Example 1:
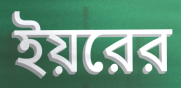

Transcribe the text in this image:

ইয়রের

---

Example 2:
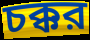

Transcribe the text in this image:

চক্কর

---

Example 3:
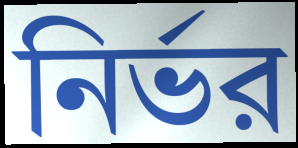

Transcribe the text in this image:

নির্ভর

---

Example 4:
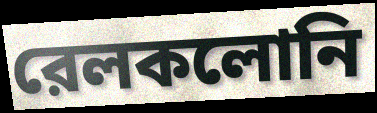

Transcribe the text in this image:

রেলকলোনি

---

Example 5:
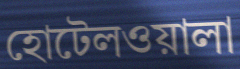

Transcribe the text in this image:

হোটেলওয়ালা